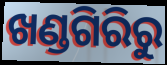
ଖଣ୍ଡଗିରିରୁ